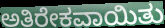
ಅತಿರೇಕವಾಯಿತು